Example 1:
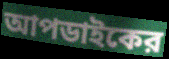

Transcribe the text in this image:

আপডাইকের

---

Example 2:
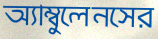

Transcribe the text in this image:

অ্যাম্বুলেনসের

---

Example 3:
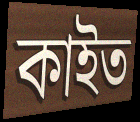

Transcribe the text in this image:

কাইত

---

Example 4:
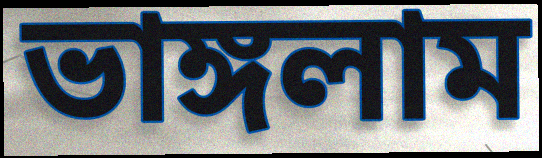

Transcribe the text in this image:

ভাঙ্গলাম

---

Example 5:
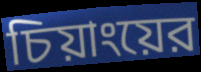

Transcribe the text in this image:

চিয়াংয়ের